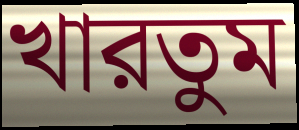
খারতুম